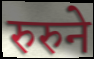
रुरुने